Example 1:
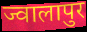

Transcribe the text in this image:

ज्वालापुर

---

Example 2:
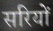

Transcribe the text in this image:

सरियों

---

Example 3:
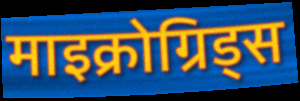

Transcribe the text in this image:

माइक्रोग्रिड्स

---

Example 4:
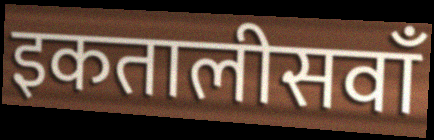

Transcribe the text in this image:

इकतालीसवाँ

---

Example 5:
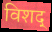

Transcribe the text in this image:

विशद्